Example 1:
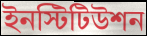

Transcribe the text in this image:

ইনস্টিটিউশন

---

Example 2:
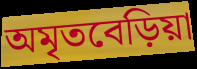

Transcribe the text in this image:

অমৃতবেড়িয়া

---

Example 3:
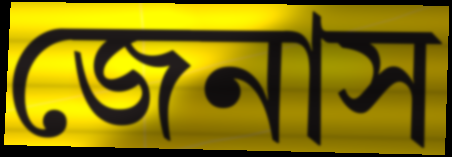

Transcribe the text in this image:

জেনাস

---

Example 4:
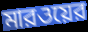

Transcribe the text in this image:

মারওয়ের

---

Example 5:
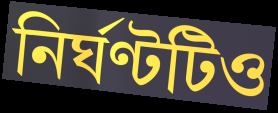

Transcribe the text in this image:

নির্ঘণ্টটিও